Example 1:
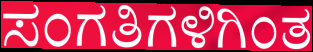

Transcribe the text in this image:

ಸಂಗತಿಗಳಿಗಿಂತ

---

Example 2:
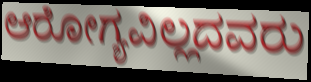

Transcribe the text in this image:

ಆರೋಗ್ಯವಿಲ್ಲದವರು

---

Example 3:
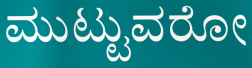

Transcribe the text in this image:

ಮುಟ್ಟುವರೋ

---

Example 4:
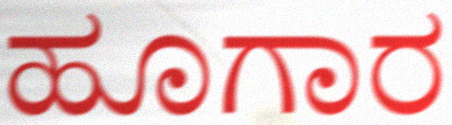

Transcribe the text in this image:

ಹೂಗಾರ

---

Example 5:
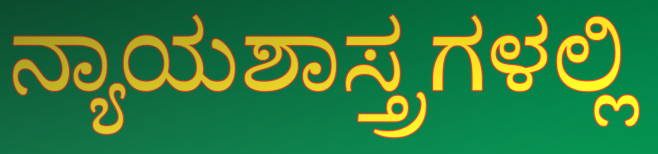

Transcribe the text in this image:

ನ್ಯಾಯಶಾಸ್ತ್ರಗಳಲ್ಲಿ